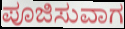
ಪೂಜಿಸುವಾಗ